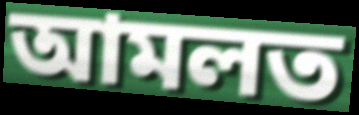
আমলত